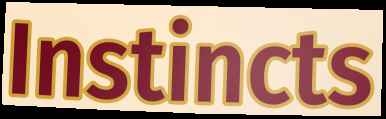
Instincts